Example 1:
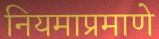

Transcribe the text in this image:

नियमाप्रमाणे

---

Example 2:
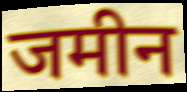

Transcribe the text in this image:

जमीन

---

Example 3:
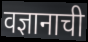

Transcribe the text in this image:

वज्ञानाची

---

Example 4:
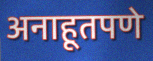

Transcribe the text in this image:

अनाहूतपणे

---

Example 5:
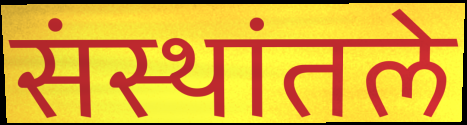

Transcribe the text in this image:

संस्थांतले